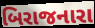
બિરાજનારા